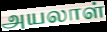
அயலாள்